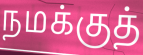
நமக்குத்